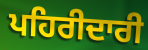
ਪਹਿਰੀਦਾਰੀ